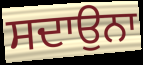
ਸਦਾਉਨਾ